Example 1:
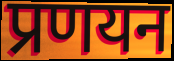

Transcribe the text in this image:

प्रणयन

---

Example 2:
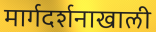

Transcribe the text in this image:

मार्गदर्शनाखाली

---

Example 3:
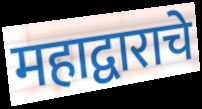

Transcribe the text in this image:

महाद्वाराचे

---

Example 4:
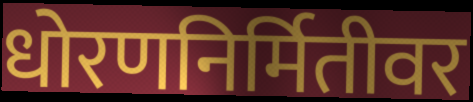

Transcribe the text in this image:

धोरणनिर्मितीवर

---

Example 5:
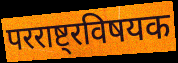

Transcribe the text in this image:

परराष्ट्रविषयक